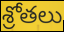
శ్రోతలు